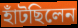
হাঁটছিলেন